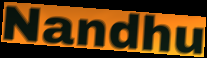
Nandhu